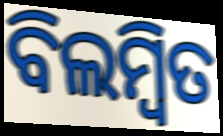
ବିଲମ୍ବିତ